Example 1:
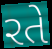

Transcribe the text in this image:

રતે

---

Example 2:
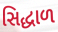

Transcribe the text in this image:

સિદ્ધાળ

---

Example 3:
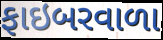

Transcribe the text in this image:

ફાઇબરવાળા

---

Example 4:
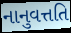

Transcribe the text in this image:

નાનુવત્તતિ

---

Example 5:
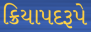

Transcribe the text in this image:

ક્રિયાપદરૂપે